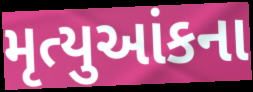
મૃત્યુઆંકના